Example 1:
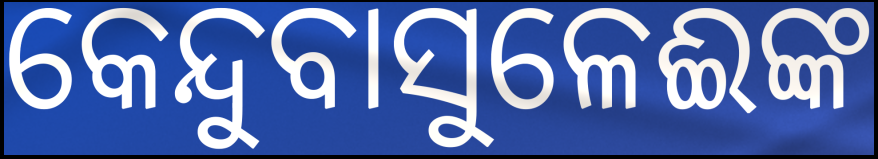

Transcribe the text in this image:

କେନ୍ଦୁବାସୁଳେଈଙ୍କ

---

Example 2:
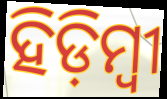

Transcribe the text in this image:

ହିଡ଼ିମ୍ବୀ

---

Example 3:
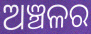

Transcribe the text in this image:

ଅଞ୍ଚଳର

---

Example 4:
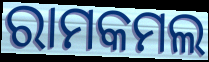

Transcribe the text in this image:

ରାମକମଲ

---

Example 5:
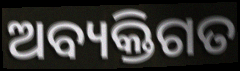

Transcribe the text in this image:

ଅବ୍ୟକ୍ତିଗତ